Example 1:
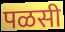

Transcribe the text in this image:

पळसी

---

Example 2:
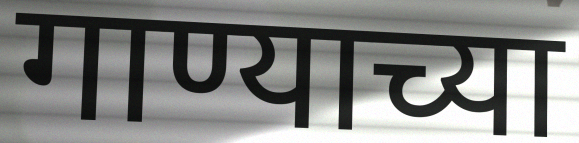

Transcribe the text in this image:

गाण्याच्या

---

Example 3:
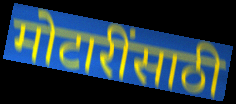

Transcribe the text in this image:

मोटारींसाठी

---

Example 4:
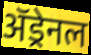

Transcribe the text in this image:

ॲड्रेनल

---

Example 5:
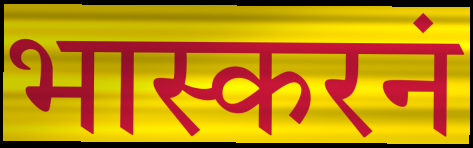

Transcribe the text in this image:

भास्करनं